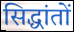
सिद्धांतों